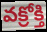
వక్రోక్తి